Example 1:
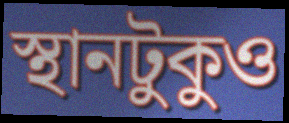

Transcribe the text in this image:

স্থানটুকুও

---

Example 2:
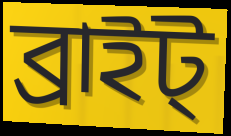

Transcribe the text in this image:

ব্রাইট্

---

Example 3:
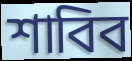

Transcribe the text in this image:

শাবিব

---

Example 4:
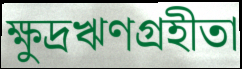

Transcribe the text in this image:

ক্ষুদ্রঋণগ্রহীতা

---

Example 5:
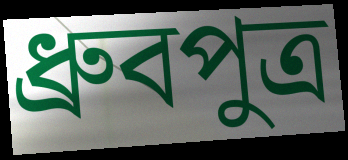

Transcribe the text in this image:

ধ্রুবপুত্র